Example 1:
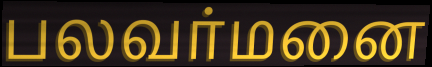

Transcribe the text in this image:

பலவர்மனை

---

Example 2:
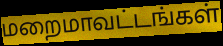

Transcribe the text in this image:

மறைமாவட்டங்கள்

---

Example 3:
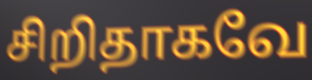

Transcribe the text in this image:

சிறிதாகவே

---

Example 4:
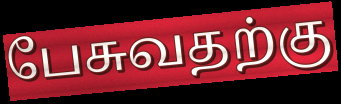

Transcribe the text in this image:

பேசுவதற்கு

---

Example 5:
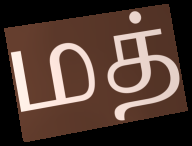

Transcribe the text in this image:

மத்